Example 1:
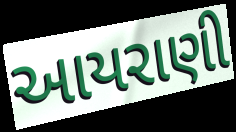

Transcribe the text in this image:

આયરાણી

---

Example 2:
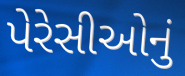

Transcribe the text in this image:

પેરેસીઓનું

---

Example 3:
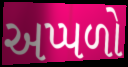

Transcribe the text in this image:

અપ્પળો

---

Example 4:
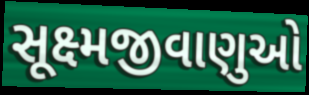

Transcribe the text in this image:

સૂક્ષ્મજીવાણુઓ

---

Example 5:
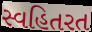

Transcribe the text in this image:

સ્વહિતરત